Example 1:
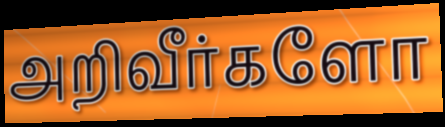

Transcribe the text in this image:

அறிவீர்களோ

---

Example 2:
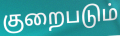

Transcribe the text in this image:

குறைபடும்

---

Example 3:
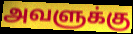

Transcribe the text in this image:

அவளுக்கு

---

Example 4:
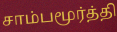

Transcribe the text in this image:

சாம்பமூர்த்தி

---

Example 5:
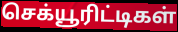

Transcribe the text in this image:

செக்யூரிட்டிகள்